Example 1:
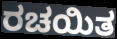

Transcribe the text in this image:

ರಚಯಿತ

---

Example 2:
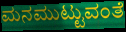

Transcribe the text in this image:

ಮನಮುಟ್ಟುವಂತೆ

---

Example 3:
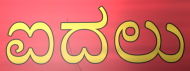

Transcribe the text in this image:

ಐದಲು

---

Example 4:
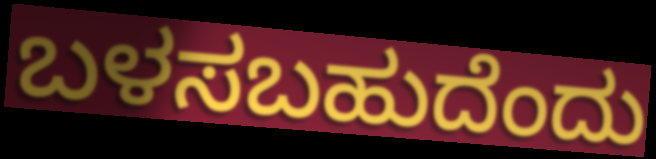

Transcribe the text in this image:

ಬಳಸಬಹುದೆಂದು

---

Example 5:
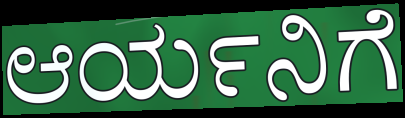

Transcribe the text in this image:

ಆರ್ಯನಿಗೆ